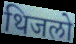
थिजलो